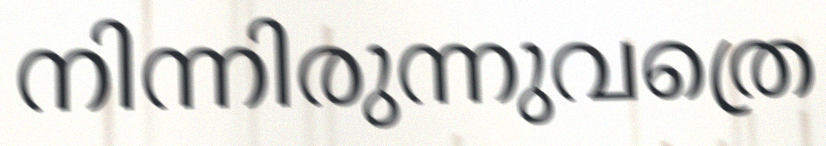
നിന്നിരുന്നുവത്രെ